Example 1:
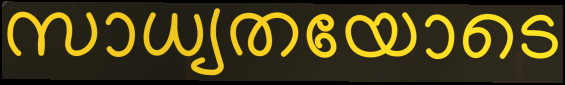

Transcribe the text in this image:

സാധ്യതയോടെ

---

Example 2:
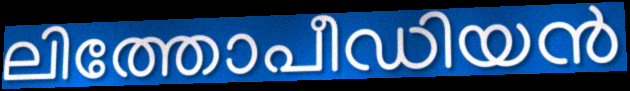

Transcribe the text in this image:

ലിത്തോപീഡിയൻ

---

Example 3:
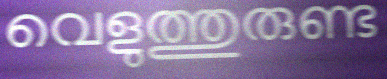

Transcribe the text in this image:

വെളുത്തുരുണ്ട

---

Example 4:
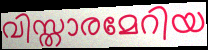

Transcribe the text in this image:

വിസ്താരമേറിയ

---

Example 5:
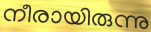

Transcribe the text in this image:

നീരായിരുന്നു